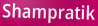
Shampratik